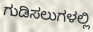
ಗುಡಿಸಲುಗಳಲ್ಲಿ